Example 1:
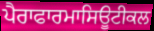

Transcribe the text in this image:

ਪੈਰਾਫਾਰਮਾਸਿਊਟੀਕਲ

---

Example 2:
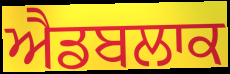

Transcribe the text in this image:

ਐਡਬਲਾਕ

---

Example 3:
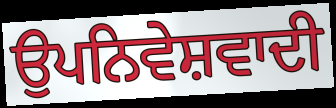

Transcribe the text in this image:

ਉਪਨਿਵੇਸ਼ਵਾਦੀ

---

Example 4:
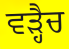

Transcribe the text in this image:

ਵੜ੍ਹੈਚ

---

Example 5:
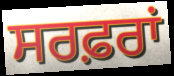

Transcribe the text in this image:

ਸਰਫ਼ਰਾਂ